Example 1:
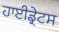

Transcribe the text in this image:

ਹਾਈਡ੍ਰੇਟਸ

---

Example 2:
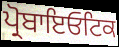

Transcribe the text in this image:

ਪ੍ਰੋਬਾਇਓਟਿਕ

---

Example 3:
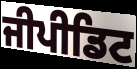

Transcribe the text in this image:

ਜੀਪੀਡਿਟ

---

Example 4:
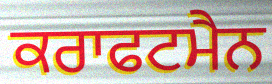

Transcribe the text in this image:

ਕਰਾਫਟਮੈਨ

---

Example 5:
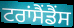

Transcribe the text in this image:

ਟਰਾਂਸੈਂਡੈਂਸ